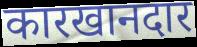
कारखानदार